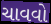
ચાવવો